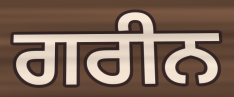
ਗਰੀਨ